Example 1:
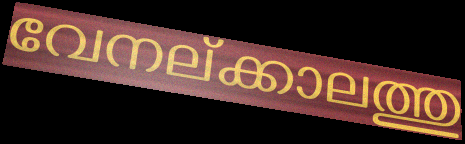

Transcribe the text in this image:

വേനല്ക്കാലത്തു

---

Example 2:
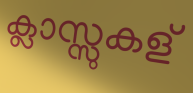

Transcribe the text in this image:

ക്ലാസ്സുകള്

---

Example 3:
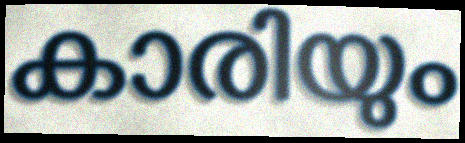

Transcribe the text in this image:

കാരിയും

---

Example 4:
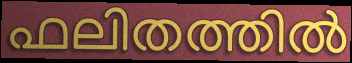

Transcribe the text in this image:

ഫലിതത്തിൽ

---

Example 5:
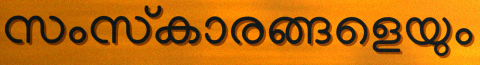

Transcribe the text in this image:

സംസ്‌കാരങ്ങളെയും